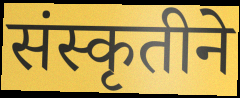
संस्कृतीने